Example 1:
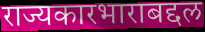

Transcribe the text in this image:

राज्यकारभाराबद्दल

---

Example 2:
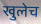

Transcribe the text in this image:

खुलेच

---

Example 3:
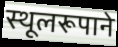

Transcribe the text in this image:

स्थूलरूपाने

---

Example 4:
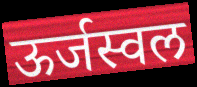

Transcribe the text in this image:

ऊर्जस्वल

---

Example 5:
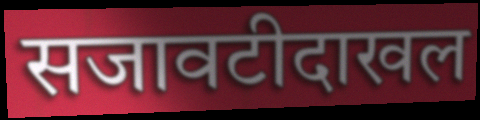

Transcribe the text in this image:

सजावटीदाखल